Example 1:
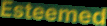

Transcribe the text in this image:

Esteemed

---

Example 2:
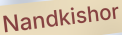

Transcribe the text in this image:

Nandkishor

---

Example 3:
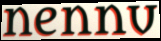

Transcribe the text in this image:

nennu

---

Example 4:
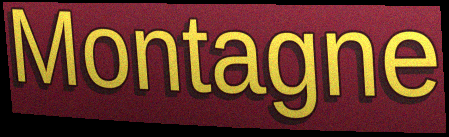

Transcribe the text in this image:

Montagne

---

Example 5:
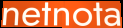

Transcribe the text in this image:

netnota